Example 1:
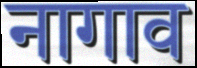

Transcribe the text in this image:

नागाव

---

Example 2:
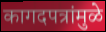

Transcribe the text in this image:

कागदपत्रांमुळे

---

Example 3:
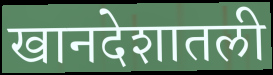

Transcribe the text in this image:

खानदेशातली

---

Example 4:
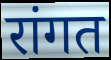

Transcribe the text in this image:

रांगत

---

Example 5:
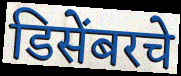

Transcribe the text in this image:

डिसेंबरचे